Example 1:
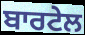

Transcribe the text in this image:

ਬਾਰਟੇਲ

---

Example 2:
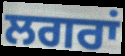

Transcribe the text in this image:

ਲਗਰਾਂ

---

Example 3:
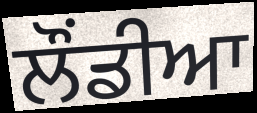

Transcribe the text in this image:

ਲੌਂਡੀਆ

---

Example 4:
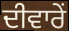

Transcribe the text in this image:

ਦੀਵਾਰੇਂ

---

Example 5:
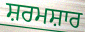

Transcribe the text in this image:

ਸ਼ਰਮਸ਼ਾਰ